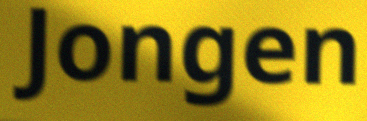
Jongen